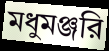
মধুমঞ্জরি